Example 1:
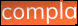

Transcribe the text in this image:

compla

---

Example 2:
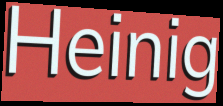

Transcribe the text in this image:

Heinig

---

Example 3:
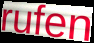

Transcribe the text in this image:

rufen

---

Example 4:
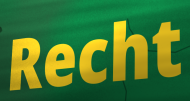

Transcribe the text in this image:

Recht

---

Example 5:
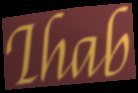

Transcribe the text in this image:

Ihab